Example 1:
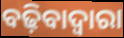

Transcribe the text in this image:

ବଢ଼ିବାଦ୍ୱାରା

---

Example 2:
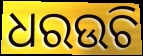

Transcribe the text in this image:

ଧରଉଚି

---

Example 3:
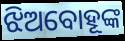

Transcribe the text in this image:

ଝିଅବୋହୂଙ୍କ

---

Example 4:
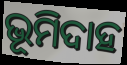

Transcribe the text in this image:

ଭୂମିଦାହ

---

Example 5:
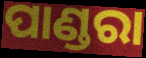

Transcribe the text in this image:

ପାଣ୍ଡରା